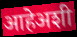
आहेअशी